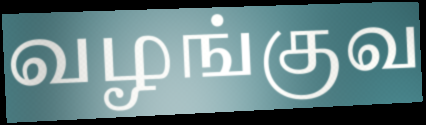
வழங்குவ